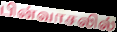
பின்வாசலில்